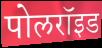
पोलरॉइड